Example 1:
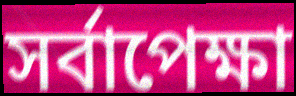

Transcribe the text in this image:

সৰ্বাপেক্ষা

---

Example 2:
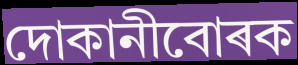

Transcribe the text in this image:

দোকানীবোৰক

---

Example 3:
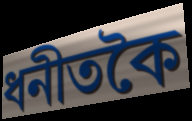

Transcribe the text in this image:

ধনীতকৈ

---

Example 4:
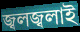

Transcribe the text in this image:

জ্বলজ্বলাই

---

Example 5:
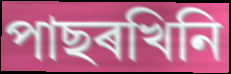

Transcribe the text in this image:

পাছৰখিনি